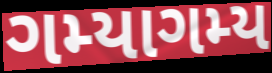
ગમ્યાગમ્ય